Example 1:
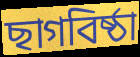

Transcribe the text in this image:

ছাগবিষ্ঠা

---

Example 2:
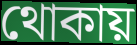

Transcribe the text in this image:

থোকায়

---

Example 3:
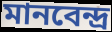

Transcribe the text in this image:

মানবেন্দ্র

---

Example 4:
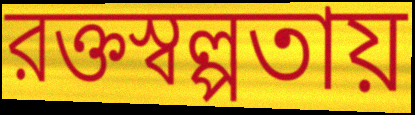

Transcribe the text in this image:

রক্তস্বল্পতায়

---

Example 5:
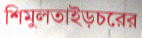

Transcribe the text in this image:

শিমুলতাইড়চরের